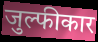
जुल्फीकार